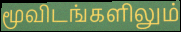
மூவிடங்களிலும்